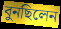
বুনছিলেন